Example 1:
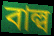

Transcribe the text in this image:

বাল্ব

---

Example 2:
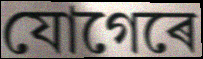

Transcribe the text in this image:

যোগেৰে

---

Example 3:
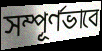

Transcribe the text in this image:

সম্পূৰ্ণভাবে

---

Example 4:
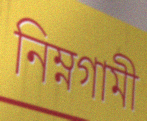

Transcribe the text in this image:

নিম্নগামী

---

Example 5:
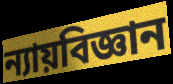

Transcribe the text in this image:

ন্যায়বিজ্ঞান